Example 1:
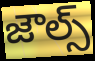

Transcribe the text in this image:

జౌల్స్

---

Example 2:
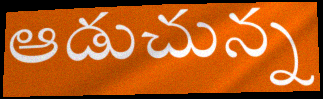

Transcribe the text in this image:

ఆడుచున్న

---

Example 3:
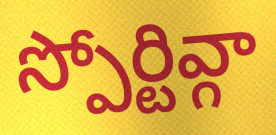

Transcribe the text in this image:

స్పోర్టివ్గా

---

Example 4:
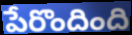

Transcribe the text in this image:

పేరొందింది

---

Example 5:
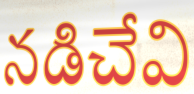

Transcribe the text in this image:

నడిచేవి